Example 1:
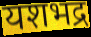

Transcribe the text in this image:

यशभद्र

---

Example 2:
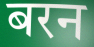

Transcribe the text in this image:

बरन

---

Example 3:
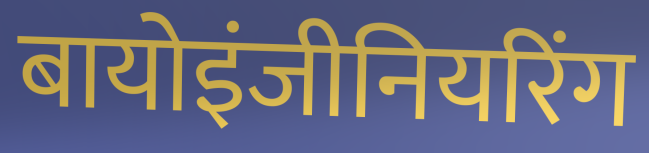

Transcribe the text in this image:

बायोइंजीनियरिंग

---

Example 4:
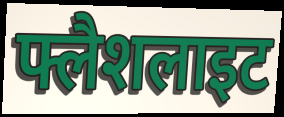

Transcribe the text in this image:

फ्लैशलाइट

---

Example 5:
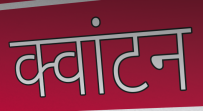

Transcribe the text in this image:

क्वांटन